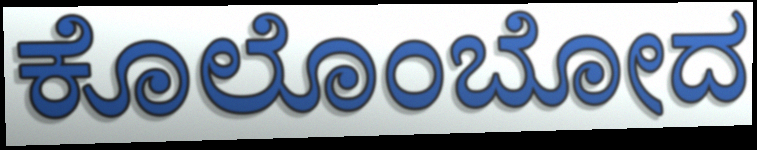
ಕೊಲೊಂಬೋದ